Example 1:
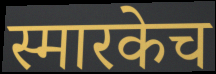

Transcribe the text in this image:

स्मारकेच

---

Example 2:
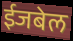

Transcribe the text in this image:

ईजबेल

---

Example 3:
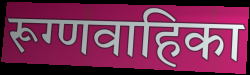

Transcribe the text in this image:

रूग्णवाहिका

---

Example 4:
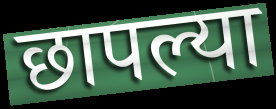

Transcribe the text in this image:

छापल्या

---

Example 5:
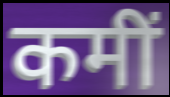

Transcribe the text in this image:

कमीं